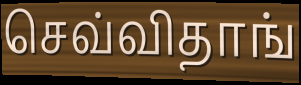
செவ்விதாங்